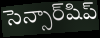
సెన్సార్‌షిప్